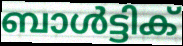
ബാൾട്ടിക്